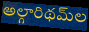
అల్గారిథమ్‌ల